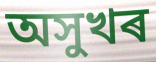
অসুখৰ